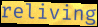
reliving